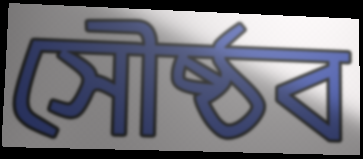
সৌষ্ঠব